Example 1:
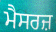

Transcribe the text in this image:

ਮੈਸਰਜ਼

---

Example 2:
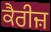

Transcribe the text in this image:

ਕੈਰੀਜ਼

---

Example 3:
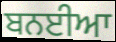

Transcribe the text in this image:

ਬਨਈਆ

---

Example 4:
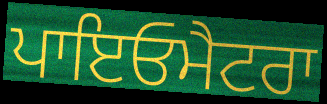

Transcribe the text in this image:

ਪਾਇਓਮੈਟਰਾ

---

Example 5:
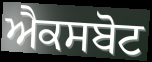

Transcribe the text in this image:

ਐਕਸਬੋਟ